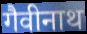
गैवीनाथ